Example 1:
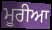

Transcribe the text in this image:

ਮੂਰੀਆ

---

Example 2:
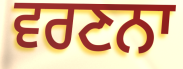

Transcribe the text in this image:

ਵਰਣਨਾ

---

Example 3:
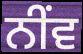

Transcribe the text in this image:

ਨੀਂਵ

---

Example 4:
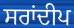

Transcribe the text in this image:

ਸਰਾਂਦੀਪ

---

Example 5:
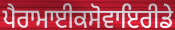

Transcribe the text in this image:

ਪੈਰਾਮਾਈਕਸੋਵਾਇਰੀਡੇ